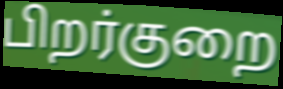
பிறர்குறை